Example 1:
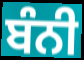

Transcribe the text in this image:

ਬੰਨੀ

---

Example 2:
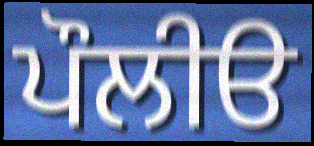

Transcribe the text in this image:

ਪੌਲੀੳ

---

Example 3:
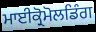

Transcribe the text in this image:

ਮਾਈਕ੍ਰੋਮੋਲਡਿੰਗ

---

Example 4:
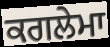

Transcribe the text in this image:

ਕਗਲੇਮਾ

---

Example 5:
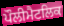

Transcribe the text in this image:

ਪੌਲੀਮੈਟਲਿਕ